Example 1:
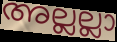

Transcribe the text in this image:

അല്ലല്ലാ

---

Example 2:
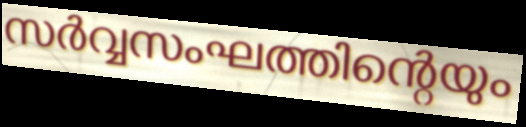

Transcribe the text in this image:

സർവ്വസംഘത്തിന്റെയും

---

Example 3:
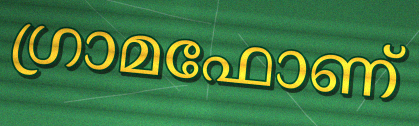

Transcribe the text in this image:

ഗ്രാമഫോണ്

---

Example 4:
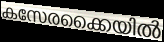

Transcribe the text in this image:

കസേരക്കൈയിൽ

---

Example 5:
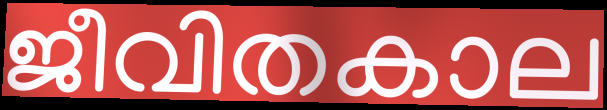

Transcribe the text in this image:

ജീവിതകാല